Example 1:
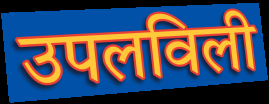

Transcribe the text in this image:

उपलविली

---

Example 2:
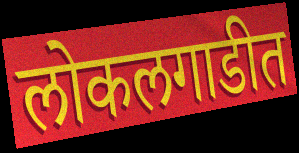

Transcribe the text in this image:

लोकलगाडीत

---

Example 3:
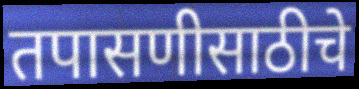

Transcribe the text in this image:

तपासणीसाठीचे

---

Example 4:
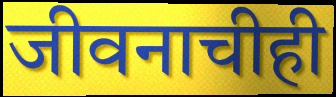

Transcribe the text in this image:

जीवनाचीही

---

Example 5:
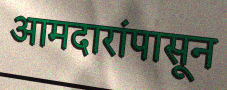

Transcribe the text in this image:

आमदारांपासून